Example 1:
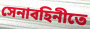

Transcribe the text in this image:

সেনাবহিনীতে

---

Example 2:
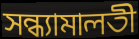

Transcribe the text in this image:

সন্ধ্যামালতী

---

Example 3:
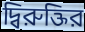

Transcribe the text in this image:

দ্বিরুক্তির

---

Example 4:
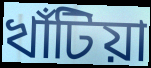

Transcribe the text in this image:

খাঁটিয়া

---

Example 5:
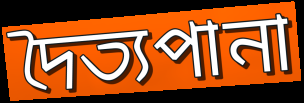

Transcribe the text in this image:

দৈত্যপানা